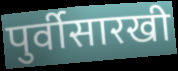
पुर्वीसारखी